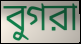
বুগরা